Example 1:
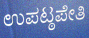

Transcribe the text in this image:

ಉಪಟ್ಠಪೇತಿ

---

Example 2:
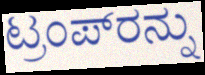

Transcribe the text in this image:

ಟ್ರಂಪ್‌ರನ್ನು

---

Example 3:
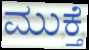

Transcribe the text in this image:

ಮುಕ್ತೆ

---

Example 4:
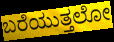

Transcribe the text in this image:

ಬರೆಯುತ್ತಲೋ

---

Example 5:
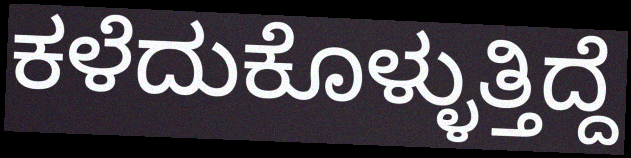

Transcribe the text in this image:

ಕಳೆದುಕೊಳ್ಳುತ್ತಿದ್ದೆ